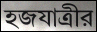
হজযাত্রীর